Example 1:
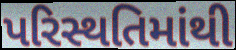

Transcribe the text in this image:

પરિસ્થતિમાંથી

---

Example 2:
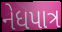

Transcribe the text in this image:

નેધપાત્ર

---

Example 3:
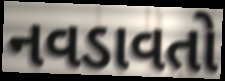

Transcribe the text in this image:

નવડાવતો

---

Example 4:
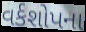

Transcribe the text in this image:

વર્કશોપના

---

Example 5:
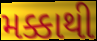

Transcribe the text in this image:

મક્કાથી